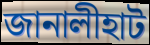
জানালীহাট